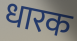
धारक